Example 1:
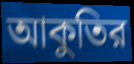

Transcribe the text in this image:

আকুতির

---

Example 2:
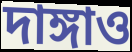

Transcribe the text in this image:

দাঙ্গাও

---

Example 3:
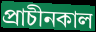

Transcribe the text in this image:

প্রাচীনকাল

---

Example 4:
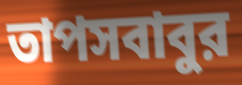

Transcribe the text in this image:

তাপসবাবুর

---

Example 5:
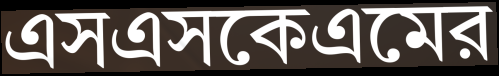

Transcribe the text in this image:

এসএসকেএমের